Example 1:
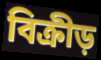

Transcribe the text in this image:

বিক্রীড়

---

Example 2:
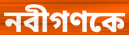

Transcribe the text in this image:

নবীগণকে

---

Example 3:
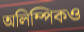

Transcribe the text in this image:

অলিম্পিকও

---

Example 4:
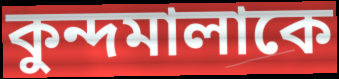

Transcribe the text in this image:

কুন্দমালাকে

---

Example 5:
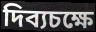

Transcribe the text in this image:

দিব্যচক্ষে